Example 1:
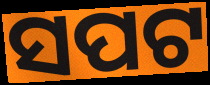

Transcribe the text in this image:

ସପଟ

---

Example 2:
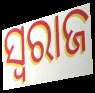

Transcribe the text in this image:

ସ୍ବରାଜ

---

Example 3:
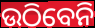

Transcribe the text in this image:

ଉଠିବେନି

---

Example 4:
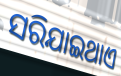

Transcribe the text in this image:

ସରିଯାଇଥାଏ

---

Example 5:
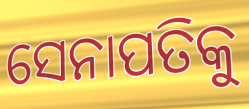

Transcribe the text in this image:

ସେନାପତିକୁ